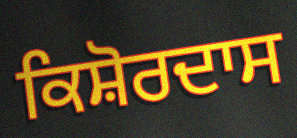
ਕਿਸ਼ੋਰਦਾਸ